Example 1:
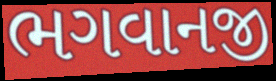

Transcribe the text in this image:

ભગવાનજી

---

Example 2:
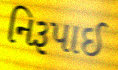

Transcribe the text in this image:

નિરૂપાઈ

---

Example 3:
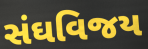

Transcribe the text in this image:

સંઘવિજય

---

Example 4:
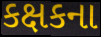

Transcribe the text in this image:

કક્ષકના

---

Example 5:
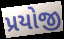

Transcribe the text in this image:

પ્રયોજી